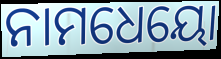
ନାମଧେୟୋ